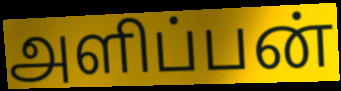
அளிப்பன்